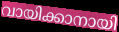
വായിക്കാനായി